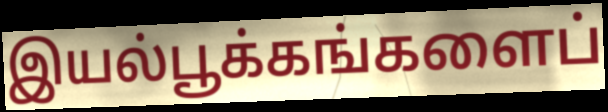
இயல்பூக்கங்களைப்